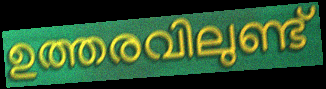
ഉത്തരവിലുണ്ട്